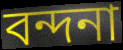
বন্দনা